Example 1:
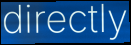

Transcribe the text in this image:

directly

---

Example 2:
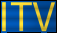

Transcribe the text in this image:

ITV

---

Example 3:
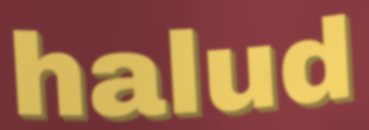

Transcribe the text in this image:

halud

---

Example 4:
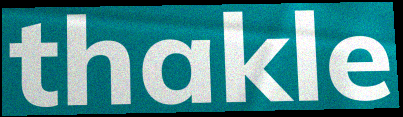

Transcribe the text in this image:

thakle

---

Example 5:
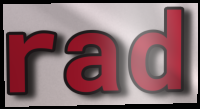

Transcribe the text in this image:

rad